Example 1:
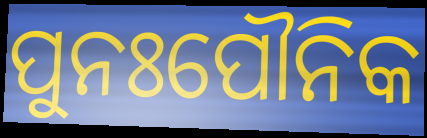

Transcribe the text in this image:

ପୁନଃପୌନିକ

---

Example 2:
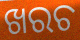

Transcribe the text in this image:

ଖରଚ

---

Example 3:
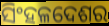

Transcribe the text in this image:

ସିଂହଳଦେଶର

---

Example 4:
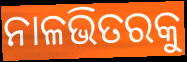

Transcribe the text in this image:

ନାଳଭିତରକୁ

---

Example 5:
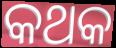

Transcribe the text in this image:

କଥକ